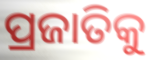
ପ୍ରଜାତିକୁ